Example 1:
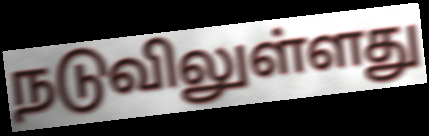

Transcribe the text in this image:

நடுவிலுள்ளது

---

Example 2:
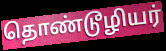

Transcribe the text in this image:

தொண்டூழியர்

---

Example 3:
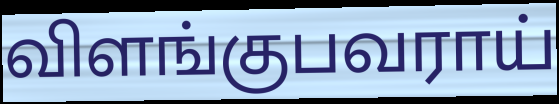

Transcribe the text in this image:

விளங்குபவராய்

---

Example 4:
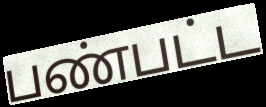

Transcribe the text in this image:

பண்பட்ட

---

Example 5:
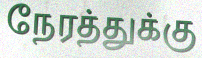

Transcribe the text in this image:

நேரத்துக்கு